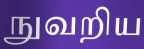
நுவறிய